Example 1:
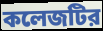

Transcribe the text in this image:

কলেজটির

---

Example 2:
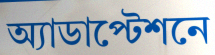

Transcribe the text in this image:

অ্যাডাপ্টেশনে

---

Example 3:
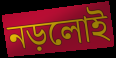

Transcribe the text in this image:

নড়লোই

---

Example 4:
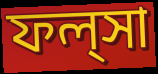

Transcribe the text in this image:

ফল্‌সা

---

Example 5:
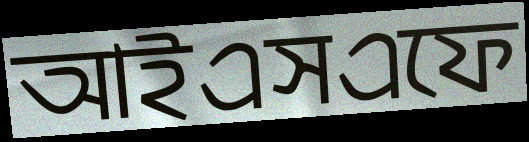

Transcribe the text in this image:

আইএসএফে